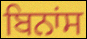
ਬਿਨਾਂਸ